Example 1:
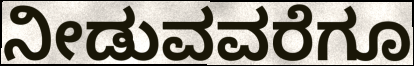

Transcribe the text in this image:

ನೀಡುವವರೆಗೂ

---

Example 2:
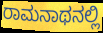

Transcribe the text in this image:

ರಾಮನಾಥನಲ್ಲಿ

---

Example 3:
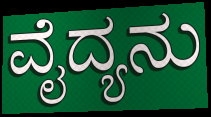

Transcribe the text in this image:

ವೈದ್ಯನು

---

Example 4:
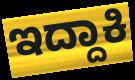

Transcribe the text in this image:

ಇದ್ದಾಕಿ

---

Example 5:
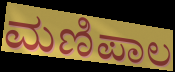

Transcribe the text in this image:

ಮಣಿಪಾಲ